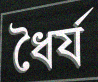
ধৈর্য